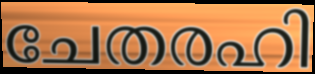
ചേതരഹി